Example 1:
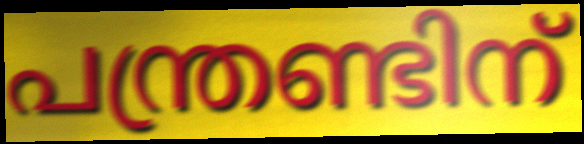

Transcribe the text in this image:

പന്ത്രണ്ടിന്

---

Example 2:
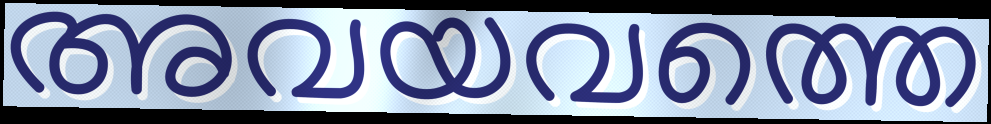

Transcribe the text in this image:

അവയവത്തെ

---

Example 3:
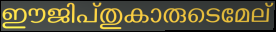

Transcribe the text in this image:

ഈജിപ്തുകാരുടെമേല്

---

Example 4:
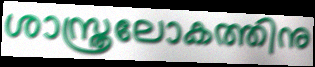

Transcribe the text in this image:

ശാസ്ത്രലോകത്തിനു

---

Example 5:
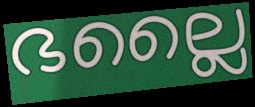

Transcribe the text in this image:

ഭല്ലൈ